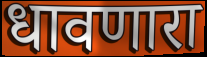
धावणारा